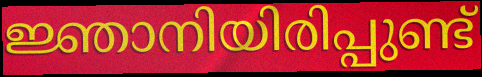
ജ്ഞാനിയിരിപ്പുണ്ട്